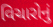
વિચારોનું